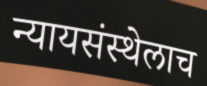
न्यायसंस्थेलाच